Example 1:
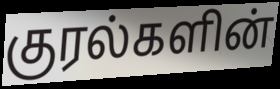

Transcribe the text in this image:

குரல்களின்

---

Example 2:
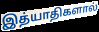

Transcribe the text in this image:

இத்யாதிகளால்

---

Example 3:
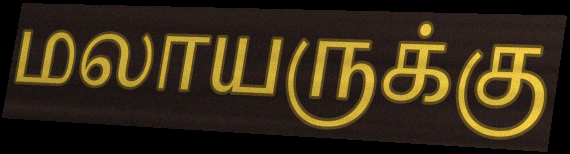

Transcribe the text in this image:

மலாயருக்கு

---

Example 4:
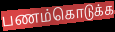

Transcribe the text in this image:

பணம்கொடுக்க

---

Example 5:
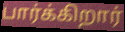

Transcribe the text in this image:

பார்க்கிறார்